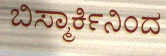
ಬಿಸ್ಮಾರ್ಕಿನಿಂದ